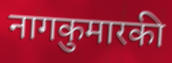
नागकुमारकी